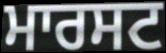
ਮਾਰਸਟ